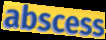
abscess